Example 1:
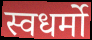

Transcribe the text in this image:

स्वधर्मो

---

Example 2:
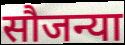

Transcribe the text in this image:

सौजन्या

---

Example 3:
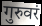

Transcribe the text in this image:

गुरुवरं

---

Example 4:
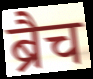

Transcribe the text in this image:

ब्रैच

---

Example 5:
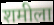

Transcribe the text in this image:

शमीला